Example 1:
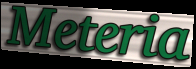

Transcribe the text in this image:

Meteria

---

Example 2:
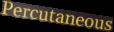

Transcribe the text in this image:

Percutaneous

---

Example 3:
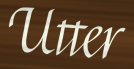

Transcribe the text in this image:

Utter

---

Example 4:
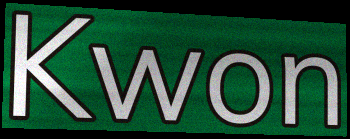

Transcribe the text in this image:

Kwon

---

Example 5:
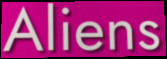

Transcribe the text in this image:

Aliens